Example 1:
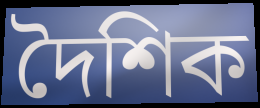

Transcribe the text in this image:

দৈশিক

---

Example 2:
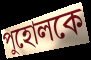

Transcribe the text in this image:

পুহোলকে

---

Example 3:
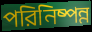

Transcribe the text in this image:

পরিনিষ্পন্ন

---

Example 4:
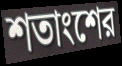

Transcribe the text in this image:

শতাংশের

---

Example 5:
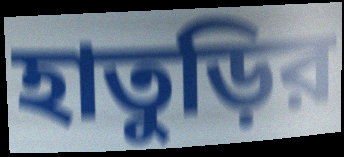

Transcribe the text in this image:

হাতুড়ির